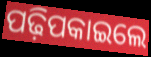
ପଢ଼ିପକାଇଲେ